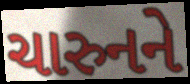
ચારુનને